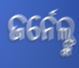
ଜର୍ନେଲ୍ଙ୍କ